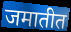
जमातीत